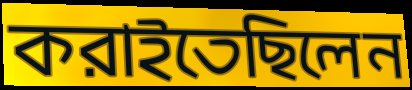
করাইতেছিলেন